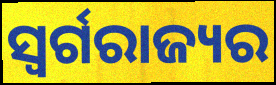
ସ୍ୱର୍ଗରାଜ୍ୟର